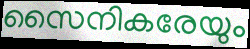
സൈനികരേയും